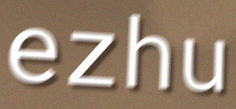
ezhu